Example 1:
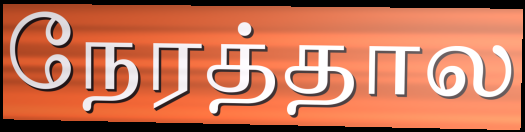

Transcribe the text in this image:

நேரத்தால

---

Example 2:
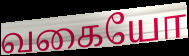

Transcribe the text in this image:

வகையோ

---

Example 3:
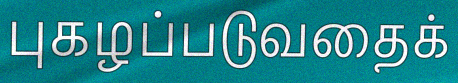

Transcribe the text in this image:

புகழப்படுவதைக்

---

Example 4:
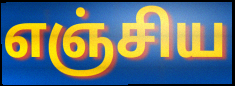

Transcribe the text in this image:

எஞ்சிய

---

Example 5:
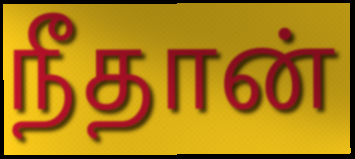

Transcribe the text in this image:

நீதான்